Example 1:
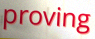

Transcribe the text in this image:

proving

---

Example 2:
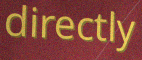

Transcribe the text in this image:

directly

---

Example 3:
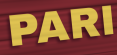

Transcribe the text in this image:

PARI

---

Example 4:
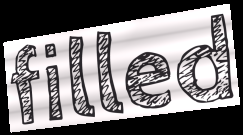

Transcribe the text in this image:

filled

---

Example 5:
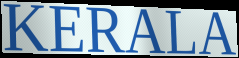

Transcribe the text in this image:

KERALA